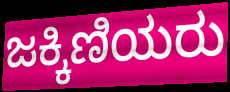
ಜಕ್ಕಿಣಿಯರು